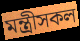
মন্ত্ৰীসকল